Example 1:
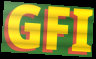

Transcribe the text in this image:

GFI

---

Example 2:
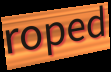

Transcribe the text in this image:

roped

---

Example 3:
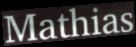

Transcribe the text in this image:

Mathias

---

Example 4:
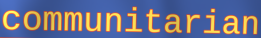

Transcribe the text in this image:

communitarian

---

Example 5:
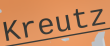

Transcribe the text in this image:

Kreutz